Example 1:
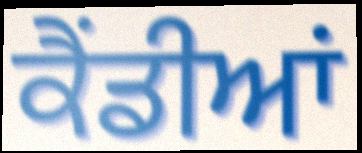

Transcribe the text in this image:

ਕੈਂਡੀਆਂ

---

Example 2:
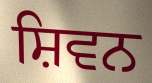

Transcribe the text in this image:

ਸ਼ਿਵਨ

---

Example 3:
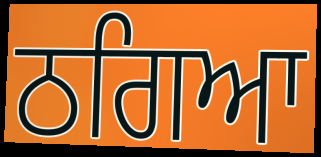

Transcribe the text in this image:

ਠਗਿਆ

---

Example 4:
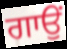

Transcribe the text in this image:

ਗਾਉਂ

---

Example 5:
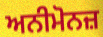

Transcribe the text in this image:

ਅਨੀਮੋਨਜ਼